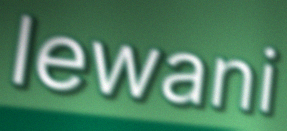
lewani